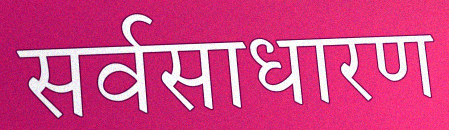
सर्वसाधारण